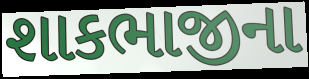
શાકભાજીના